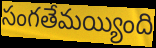
సంగతేమయ్యింది